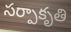
సర్పాకృతి